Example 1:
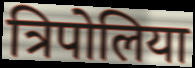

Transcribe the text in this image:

त्रिपोलिया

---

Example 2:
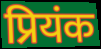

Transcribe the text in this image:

प्रियंक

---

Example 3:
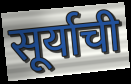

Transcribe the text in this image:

सूर्याची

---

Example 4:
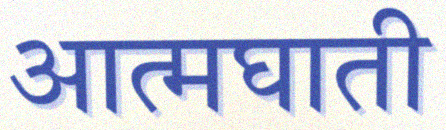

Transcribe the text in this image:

आत्मघाती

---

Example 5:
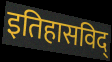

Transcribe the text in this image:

इतिहासविद्